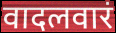
वादलवारं